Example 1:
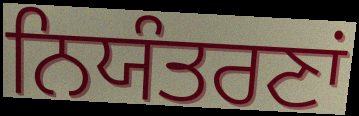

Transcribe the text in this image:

ਨਿਯੰਤਰਣਾਂ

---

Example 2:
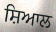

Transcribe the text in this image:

ਸ਼ਿਆਲ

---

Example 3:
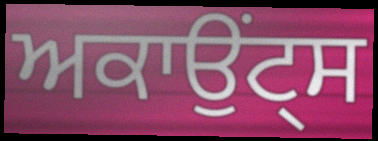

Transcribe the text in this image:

ਅਕਾਉਂਟ੍ਸ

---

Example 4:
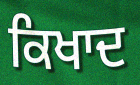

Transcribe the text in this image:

ਕਿਖਾਦ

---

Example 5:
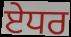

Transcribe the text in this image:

ਏਧਰ